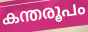
കന്തരൂപം